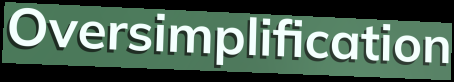
Oversimplification